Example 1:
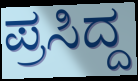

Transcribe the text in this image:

ಪ್ರಸಿದ್ದ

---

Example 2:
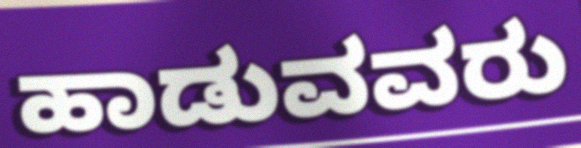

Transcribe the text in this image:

ಹಾಡುವವರು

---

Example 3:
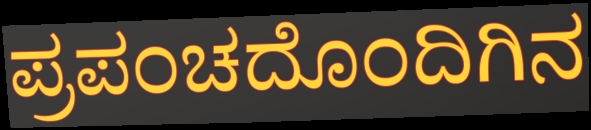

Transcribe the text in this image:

ಪ್ರಪಂಚದೊಂದಿಗಿನ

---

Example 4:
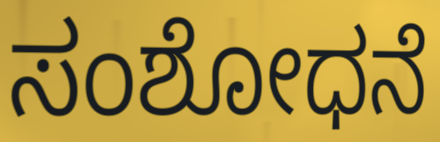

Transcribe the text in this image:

ಸಂಶೋಧನೆ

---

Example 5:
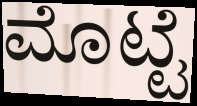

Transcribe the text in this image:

ಮೊಟ್ಟೆ